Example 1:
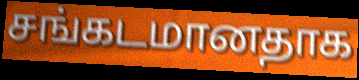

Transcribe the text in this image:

சங்கடமானதாக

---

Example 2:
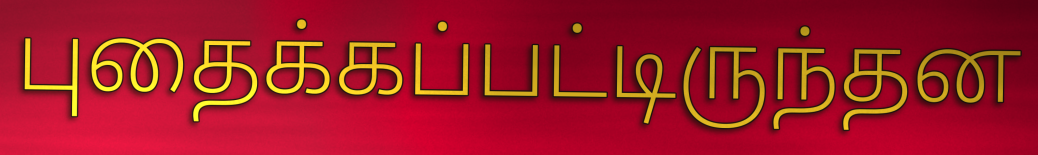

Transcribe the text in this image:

புதைக்கப்பட்டிருந்தன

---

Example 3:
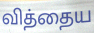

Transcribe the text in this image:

வித்தைய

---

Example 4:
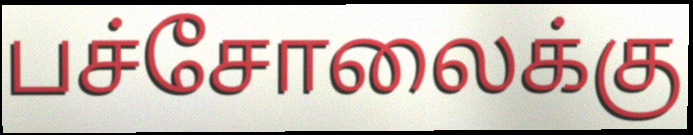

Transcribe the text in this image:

பச்சோலைக்கு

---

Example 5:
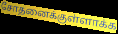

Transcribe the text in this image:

சோதனைக்குள்ளாக்க